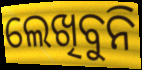
ଲେଖିବୁନି